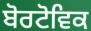
ਬੋਰਟੋਵਿਕ